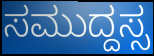
ಸಮುದ್ದಸ್ಸ